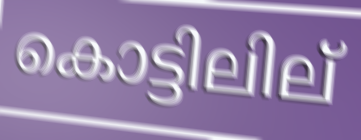
കൊട്ടിലില്